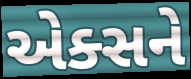
એક્સને